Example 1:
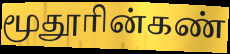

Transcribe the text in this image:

மூதூரின்கண்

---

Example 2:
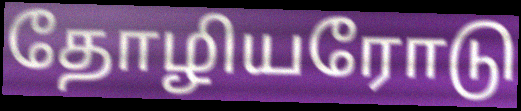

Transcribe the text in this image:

தோழியரோடு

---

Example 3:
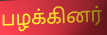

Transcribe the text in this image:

பழக்கினர்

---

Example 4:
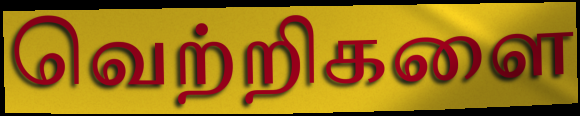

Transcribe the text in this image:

வெற்றிகளை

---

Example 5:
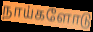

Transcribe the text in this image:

நாய்களோடு